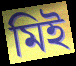
মিই